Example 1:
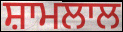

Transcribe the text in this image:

ਸ਼ਾਮਲਾਲ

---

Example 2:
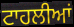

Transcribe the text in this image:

ਟਾਹਲੀਆਂ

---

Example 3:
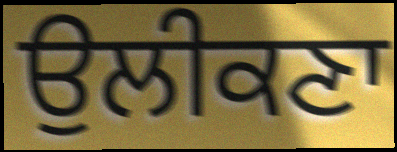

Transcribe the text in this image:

ਉਲੀਕਣਾ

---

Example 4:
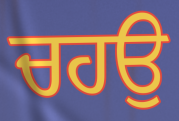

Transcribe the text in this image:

ਚਹਉ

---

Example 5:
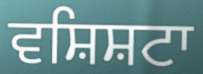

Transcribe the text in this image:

ਵਸ਼ਿਸ਼ਟਾ